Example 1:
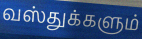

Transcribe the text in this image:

வஸ்துக்களும்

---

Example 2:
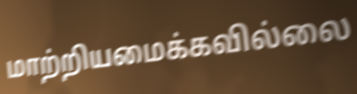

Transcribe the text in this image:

மாற்றியமைக்கவில்லை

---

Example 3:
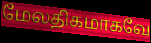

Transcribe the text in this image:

மேலதிகமாகவே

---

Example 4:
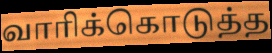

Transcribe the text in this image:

வாரிக்கொடுத்த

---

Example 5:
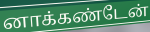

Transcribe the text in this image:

னாக்கண்டேன்